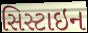
સિસ્ટાઇન